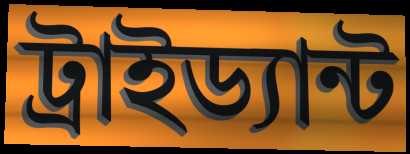
ট্রাইড্যান্ট